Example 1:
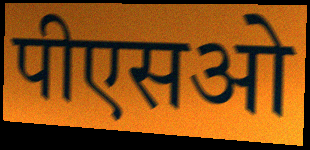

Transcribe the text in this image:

पीएसओ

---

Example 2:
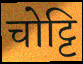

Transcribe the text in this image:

चोट्टि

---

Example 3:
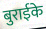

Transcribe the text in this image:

बुराईके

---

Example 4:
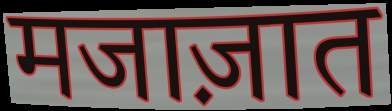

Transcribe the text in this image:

मजाज़ात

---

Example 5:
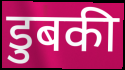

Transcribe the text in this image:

डुबकी